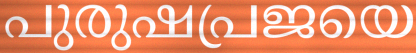
പുരുഷപ്രജയെ